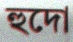
হুদো